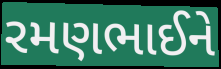
રમણભાઈને